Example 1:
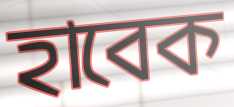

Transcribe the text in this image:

হাবেক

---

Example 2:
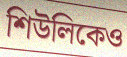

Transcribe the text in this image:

শিউলিকেও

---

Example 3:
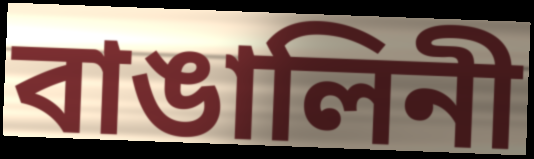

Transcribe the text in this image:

বাঙালিনী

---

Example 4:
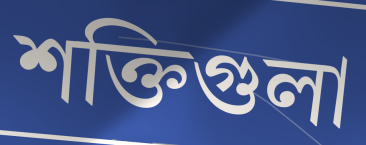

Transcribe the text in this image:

শক্তিগুলা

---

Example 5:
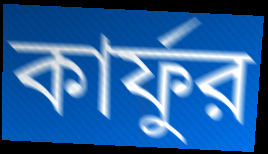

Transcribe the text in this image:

কার্ফুর